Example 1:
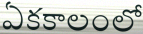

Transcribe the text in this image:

ఏకకాలంలో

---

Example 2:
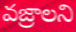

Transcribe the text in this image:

వజ్రాలని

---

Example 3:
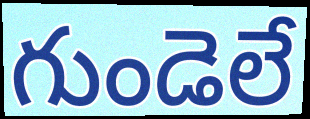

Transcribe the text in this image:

గుండెలే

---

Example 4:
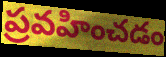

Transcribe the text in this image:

ప్రవహించడం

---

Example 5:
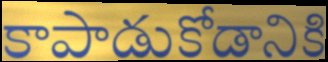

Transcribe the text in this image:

కాపాడుకోడానికి